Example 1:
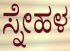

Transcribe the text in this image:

ಸ್ನೇಹಳ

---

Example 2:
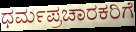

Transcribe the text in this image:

ಧರ್ಮಪ್ರಚಾರಕರಿಗೆ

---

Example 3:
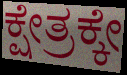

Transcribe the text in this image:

ಕ್ಷೇತ್ರಕ್ಕೇ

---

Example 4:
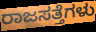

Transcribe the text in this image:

ರಾಜಸತ್ತೆಗಳು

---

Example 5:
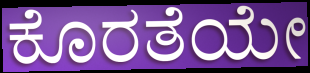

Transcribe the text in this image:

ಕೊರತೆಯೇ